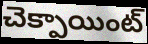
చెక్పాయింట్